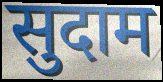
सुदाम